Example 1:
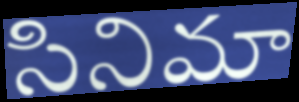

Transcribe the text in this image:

సినిమా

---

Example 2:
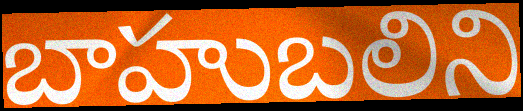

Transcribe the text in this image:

బాహుబలిని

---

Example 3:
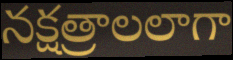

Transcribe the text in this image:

నక్షత్రాలలాగా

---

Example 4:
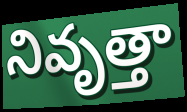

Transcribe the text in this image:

నివృత్తా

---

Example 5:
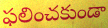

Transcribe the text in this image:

ఫలించకుండా